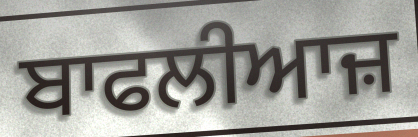
ਬਾਫਲੀਆਜ਼